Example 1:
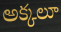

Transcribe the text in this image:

అక్కలూ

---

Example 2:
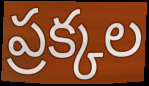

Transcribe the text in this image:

ప్రక్కల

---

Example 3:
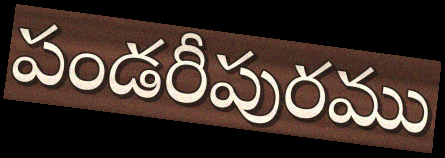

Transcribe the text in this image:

పండరీపురము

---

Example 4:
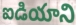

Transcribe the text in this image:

ఐడియాని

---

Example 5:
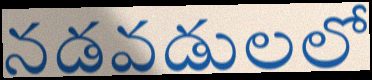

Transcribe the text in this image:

నడవడులలో